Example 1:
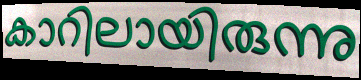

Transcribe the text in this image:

കാറിലായിരുന്നു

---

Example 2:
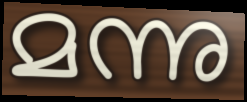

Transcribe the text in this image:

മന്നു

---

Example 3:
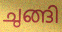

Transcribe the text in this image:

ചുങ്ങി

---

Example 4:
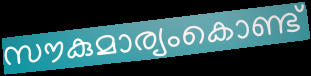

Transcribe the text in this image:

സൗകുമാര്യംകൊണ്ട്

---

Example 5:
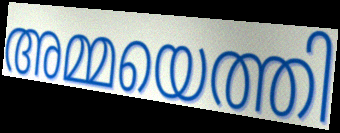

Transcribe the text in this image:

അമ്മയെത്തി